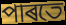
পাৰতে